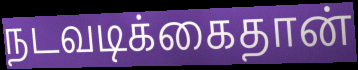
நடவடிக்கைதான்